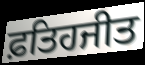
ਫ਼ਤਿਹਜੀਤ